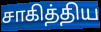
சாகித்திய